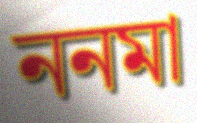
ননমা